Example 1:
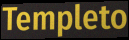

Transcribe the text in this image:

Templeto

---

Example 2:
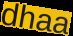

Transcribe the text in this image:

dhaa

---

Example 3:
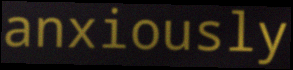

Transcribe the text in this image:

anxiously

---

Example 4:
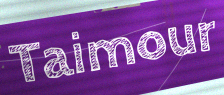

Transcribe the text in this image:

Taimour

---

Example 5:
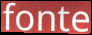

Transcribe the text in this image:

fonte